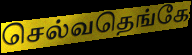
செல்வதெங்கே